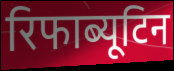
रिफाब्यूटिन